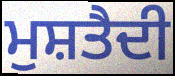
ਮੁਸ਼ਤੈਦੀ